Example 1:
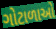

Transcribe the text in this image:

ગોટાળાઓ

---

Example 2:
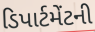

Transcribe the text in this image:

ડિપાર્ટમેંટની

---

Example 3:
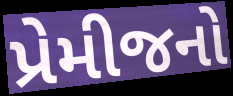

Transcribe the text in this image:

પ્રેમીજનો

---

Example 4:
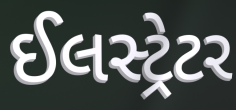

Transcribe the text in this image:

ઈલસ્ટ્રેટર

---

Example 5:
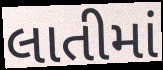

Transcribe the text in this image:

લાતીમાં